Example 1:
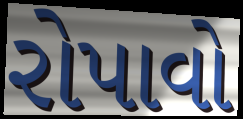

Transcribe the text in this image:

રોપાવો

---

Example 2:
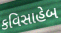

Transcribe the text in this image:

કવિસાહેબ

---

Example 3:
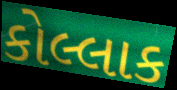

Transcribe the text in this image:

કોલ્લાક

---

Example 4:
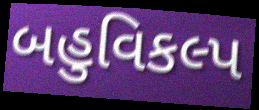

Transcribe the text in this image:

બહુવિકલ્પ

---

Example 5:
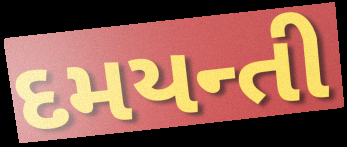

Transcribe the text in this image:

દમયન્તી